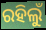
ରହିଲୁଁ